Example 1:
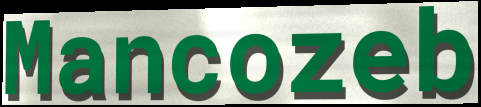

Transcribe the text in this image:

Mancozeb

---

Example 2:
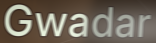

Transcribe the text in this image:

Gwadar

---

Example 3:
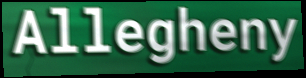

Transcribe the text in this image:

Allegheny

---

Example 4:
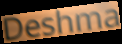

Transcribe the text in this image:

Deshma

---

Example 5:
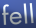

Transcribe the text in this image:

fell